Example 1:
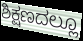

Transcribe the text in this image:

ಶಿಕ್ಷಣದಲ್ಲೂ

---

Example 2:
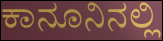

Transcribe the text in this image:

ಕಾನೂನಿನಲ್ಲಿ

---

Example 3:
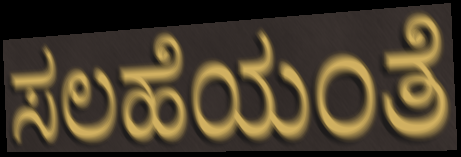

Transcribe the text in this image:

ಸಲಹೆಯಂತೆ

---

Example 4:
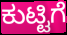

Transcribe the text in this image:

ಕುಟ್ಟಿಗೆ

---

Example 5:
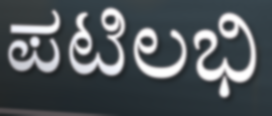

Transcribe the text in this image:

ಪಟಿಲಭಿ